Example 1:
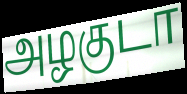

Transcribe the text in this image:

அழகுடா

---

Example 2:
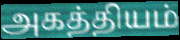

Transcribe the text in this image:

அகத்தியம்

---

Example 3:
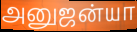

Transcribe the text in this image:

அனுஜன்யா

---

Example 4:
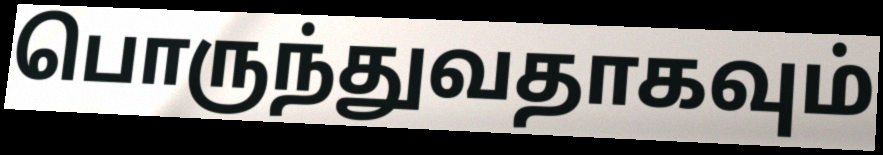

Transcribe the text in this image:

பொருந்துவதாகவும்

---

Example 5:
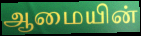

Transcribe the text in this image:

ஆமையின்